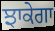
ਝਾਕੇਗਾ